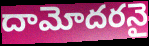
దామోదరనై